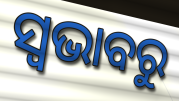
ସ୍ଵଭାବରୁ